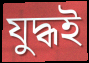
যুদ্ধই